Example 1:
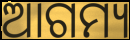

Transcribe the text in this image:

ଆଗମ୍ୟ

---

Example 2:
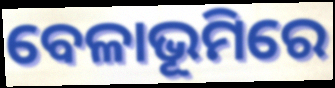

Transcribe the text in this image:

ବେଳାଭୂମିରେ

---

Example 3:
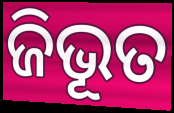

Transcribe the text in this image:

ଜିଭୂତ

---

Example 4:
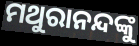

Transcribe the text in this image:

ମଥୁରାନନ୍ଦଙ୍କୁ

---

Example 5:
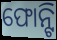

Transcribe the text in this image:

ଫୋନ୍ଟି